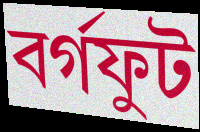
বর্গফুট